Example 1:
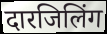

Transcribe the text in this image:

दारजिलिंग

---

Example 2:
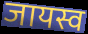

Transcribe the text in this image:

जायस्व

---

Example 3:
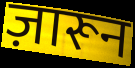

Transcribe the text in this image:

ज़ारून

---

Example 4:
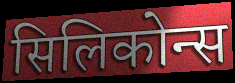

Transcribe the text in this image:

सिलिकोन्स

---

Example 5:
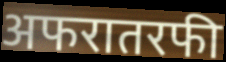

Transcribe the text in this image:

अफरातरफी